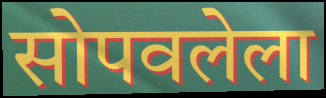
सोपवलेला